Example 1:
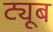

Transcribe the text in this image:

ट्यूब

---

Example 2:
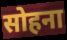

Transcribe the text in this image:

सोहना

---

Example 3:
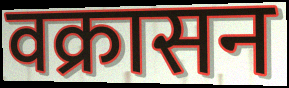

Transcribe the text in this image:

वक्रासन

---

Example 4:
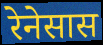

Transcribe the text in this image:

रेनेसास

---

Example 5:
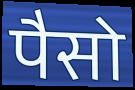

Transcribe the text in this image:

पैसो